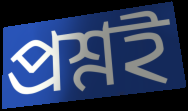
প্ৰশ্নই